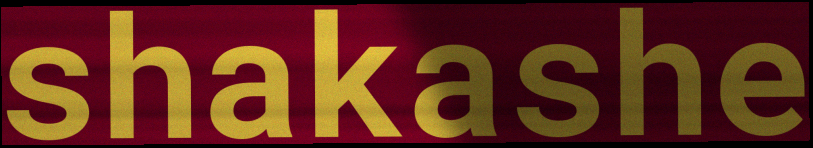
shakashe